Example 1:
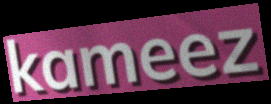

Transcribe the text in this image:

kameez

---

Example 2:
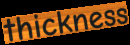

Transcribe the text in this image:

thickness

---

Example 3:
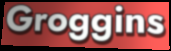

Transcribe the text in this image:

Groggins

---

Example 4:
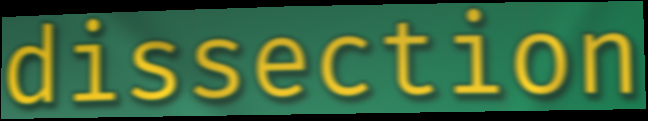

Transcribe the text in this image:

dissection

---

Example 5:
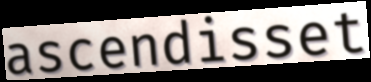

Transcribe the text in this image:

ascendisset